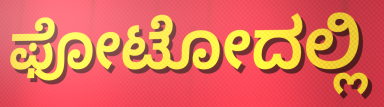
ಫೋಟೋದಲ್ಲಿ